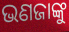
ଭଣଜାଙ୍କୁ